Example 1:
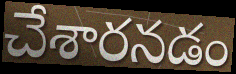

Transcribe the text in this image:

చేశారనడం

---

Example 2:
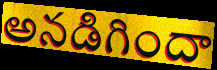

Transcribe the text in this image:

అనడిగిందా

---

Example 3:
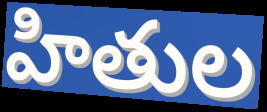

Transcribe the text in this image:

హితుల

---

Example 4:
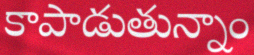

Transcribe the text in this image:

కాపాడుతున్నాం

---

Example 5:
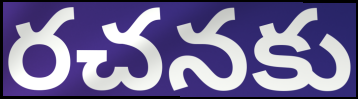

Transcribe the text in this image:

రచనకు